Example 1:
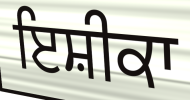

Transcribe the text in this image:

ਇਸ਼ੀਕਾ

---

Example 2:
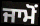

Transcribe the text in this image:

ਜਾਮੋਂ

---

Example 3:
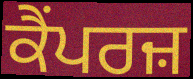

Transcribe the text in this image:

ਕੈਂਪਰਜ਼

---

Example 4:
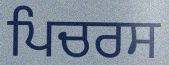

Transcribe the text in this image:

ਪਿਚਰਸ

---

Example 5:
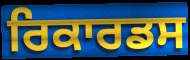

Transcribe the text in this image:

ਰਿਕਾਰਡਸ